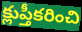
క్లుప్తీకరించి